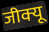
जीक्यू